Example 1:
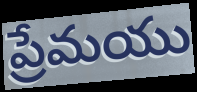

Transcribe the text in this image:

ప్రేమయు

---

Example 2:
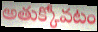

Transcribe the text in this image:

అతుక్కోవటం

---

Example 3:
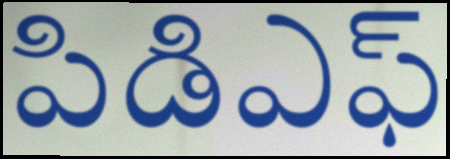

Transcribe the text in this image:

పిడిఎఫ్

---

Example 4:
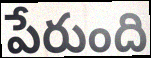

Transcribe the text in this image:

పేరుంది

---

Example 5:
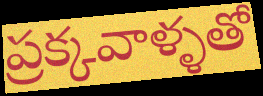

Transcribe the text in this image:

ప్రక్కవాళ్ళతో